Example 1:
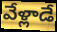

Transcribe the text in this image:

వేళ్లాడే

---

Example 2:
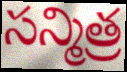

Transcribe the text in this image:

సన్మిత్ర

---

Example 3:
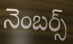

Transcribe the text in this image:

నెంబర్స్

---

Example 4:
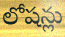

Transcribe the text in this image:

లోషన్లు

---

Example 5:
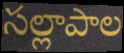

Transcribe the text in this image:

సల్లాపాల